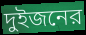
দুইজনের